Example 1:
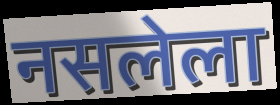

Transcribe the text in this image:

नसलेला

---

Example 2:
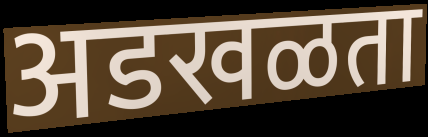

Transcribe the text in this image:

अडखळता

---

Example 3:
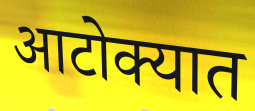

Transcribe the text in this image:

आटोक्यात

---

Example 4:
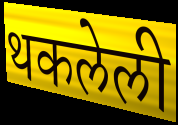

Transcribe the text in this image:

थकलेली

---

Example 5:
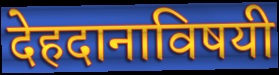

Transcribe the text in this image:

देहदानाविषयी